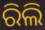
ରିଲି